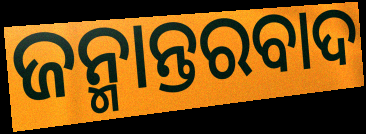
ଜନ୍ମାନ୍ତରବାଦ